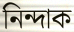
নিন্দাক